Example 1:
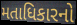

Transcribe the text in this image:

મતાધિકારનો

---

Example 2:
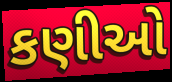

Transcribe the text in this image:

કણીઓ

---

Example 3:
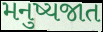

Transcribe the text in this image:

મનુષ્યજાત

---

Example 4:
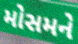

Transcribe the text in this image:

મોસમને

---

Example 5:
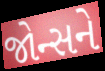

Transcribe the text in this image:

જોન્સને